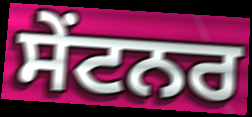
ਸੇਂਟਨਰ